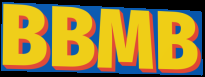
BBMB